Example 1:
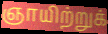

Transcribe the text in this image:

ஞாயிற்றுக்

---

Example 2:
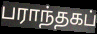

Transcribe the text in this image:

பராந்தகப்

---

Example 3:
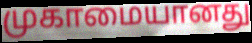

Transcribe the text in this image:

முகாமையானது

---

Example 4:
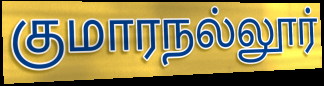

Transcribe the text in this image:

குமாரநல்லூர்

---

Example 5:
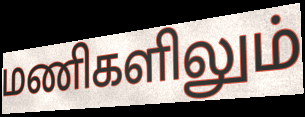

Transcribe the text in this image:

மணிகளிலும்